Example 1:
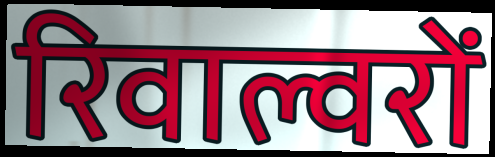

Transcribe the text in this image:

रिवाल्वरों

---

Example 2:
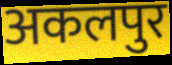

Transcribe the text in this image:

अकलपुर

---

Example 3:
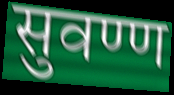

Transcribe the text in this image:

सुवण्ण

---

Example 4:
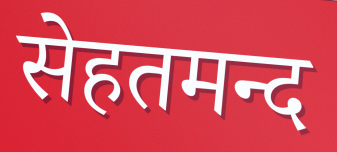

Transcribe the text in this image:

सेहतमन्द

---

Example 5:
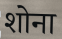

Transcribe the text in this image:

शोना